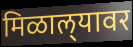
मिळाल्यावर